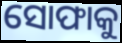
ସୋଫାକୁ